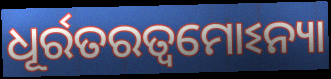
ଧୂର୍ରତରତ୍ୱମୋଽନ୍ୟା